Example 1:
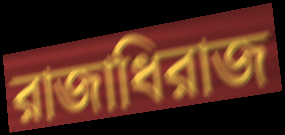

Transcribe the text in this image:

রাজাধিরাজ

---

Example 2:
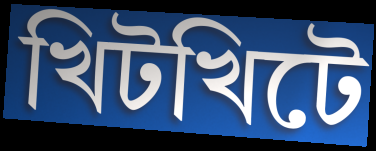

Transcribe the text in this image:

খিটখিটে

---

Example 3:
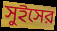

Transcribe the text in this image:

সুইসের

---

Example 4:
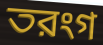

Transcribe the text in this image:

তরংগ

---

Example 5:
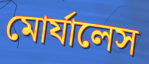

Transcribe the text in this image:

মোর্যালেস